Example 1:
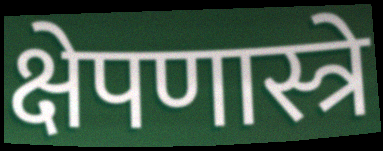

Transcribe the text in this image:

क्षेपणास्त्रे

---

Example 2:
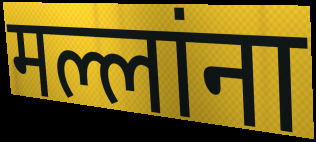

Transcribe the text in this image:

मल्लांना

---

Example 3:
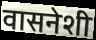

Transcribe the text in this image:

वासनेशी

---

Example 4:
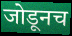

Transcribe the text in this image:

जोडूनच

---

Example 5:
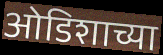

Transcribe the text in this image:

ओडिशाच्या